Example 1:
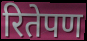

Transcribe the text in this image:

रितेपण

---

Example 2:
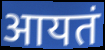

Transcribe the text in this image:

आयतं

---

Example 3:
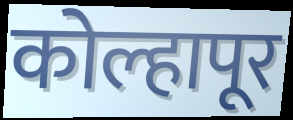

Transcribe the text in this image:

कोल्हापूर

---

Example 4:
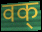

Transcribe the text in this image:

वक्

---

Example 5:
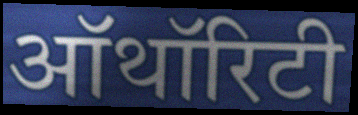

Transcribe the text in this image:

ऑथॉरिटी